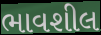
ભાવશીલ